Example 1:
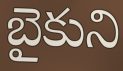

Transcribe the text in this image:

బైకుని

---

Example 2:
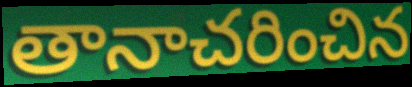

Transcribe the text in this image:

తానాచరించిన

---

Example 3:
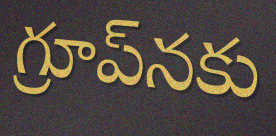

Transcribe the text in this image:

గ్రూప్‌నకు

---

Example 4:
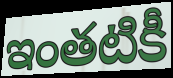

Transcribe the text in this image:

ఇంతటికీ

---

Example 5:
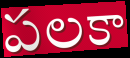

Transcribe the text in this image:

పలకా